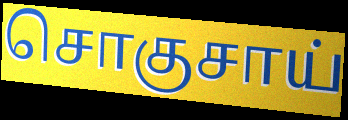
சொகுசாய்